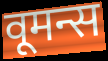
वूमन्स